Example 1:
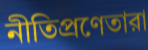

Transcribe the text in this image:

নীতিপ্রণেতারা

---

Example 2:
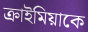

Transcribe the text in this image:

ক্রাইমিয়াকে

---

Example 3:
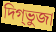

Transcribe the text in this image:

দিগ্ভুজা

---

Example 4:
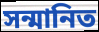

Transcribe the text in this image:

সন্মানিত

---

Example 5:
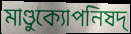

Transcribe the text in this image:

মাণ্ডুক্যোপনিষদ্